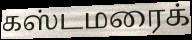
கஸ்டமரைக்